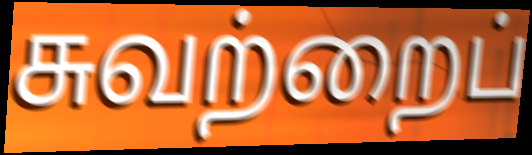
சுவற்றைப்